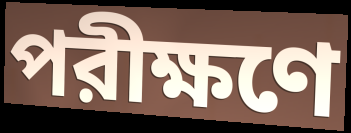
পরীক্ষণে